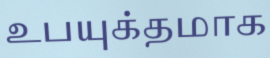
உபயுக்தமாக